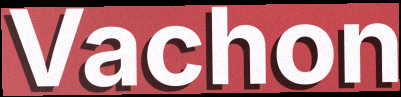
Vachon